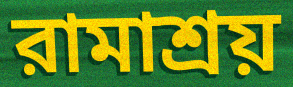
রামাশ্রয়